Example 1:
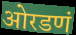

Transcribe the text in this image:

ओरडणं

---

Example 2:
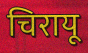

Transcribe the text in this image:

चिरायू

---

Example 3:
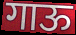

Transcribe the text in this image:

गाऊ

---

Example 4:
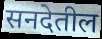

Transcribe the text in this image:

सनदेतील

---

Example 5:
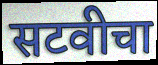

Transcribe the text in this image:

सटवीचा